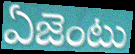
ఏజెంటు